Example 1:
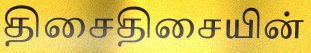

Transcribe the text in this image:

திசைதிசையின்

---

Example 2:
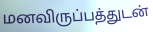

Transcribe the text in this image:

மனவிருப்பத்துடன்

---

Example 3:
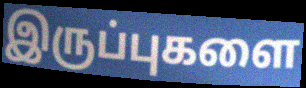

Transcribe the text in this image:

இருப்புகளை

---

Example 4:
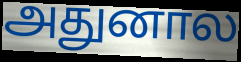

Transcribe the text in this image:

அதுனால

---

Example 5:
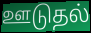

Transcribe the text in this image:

ஊடுதல்